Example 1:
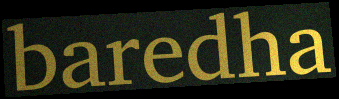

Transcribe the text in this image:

baredha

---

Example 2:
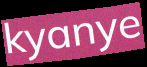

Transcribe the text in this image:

kyanye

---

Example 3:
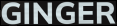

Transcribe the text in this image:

GINGER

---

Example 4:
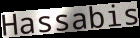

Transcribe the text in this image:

Hassabis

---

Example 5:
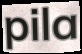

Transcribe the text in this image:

pila